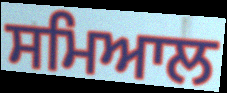
ਸਮਿਆਲ